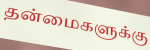
தன்மைகளுக்கு